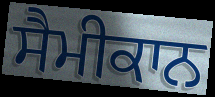
ਸੈਮੀਕਾਨ